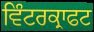
ਵਿੰਟਰਕ੍ਰਾਫਟ